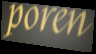
poren